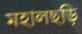
মহালছড়ি